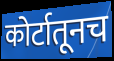
कोर्टातूनच